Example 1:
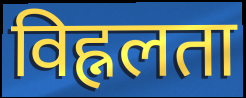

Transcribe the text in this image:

विह्नलता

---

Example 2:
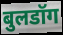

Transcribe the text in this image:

बुलडॉग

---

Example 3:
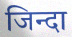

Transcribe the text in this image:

जिन्दा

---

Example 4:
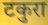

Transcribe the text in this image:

टकुरा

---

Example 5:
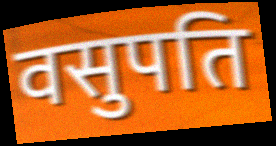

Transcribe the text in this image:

वसुपति